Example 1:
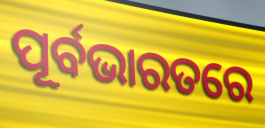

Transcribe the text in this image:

ପୂର୍ବଭାରତରେ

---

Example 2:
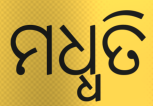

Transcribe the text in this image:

ମଧ୍ଧତି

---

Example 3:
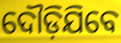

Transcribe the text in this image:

ଦୌଡ଼ିଯିବେ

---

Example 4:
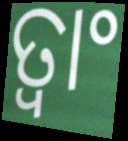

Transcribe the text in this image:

ତ୍ୱାଂ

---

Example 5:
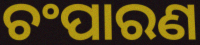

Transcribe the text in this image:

ଚଂପାରଣ